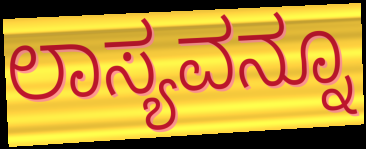
ಲಾಸ್ಯವನ್ನೂ